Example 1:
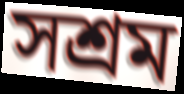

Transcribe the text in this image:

সশ্রম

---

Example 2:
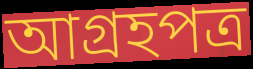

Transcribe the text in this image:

আগ্রহপত্র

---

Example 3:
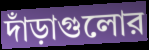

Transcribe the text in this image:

দাঁড়াগুলোর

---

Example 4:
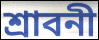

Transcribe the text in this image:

শ্রাবনী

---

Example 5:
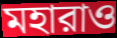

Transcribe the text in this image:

মহারাও